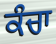
ਕੰਚਾ